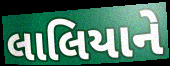
લાલિયાને